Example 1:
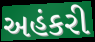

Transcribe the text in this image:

અહંકરી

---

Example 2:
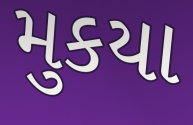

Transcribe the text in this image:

મુકયા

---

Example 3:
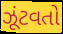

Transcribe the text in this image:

ઝૂંટવતો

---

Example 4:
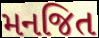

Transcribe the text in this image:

મનજિત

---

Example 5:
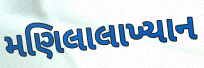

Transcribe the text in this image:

મણિલાલાખ્યાન